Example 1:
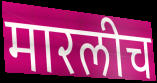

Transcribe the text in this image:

मारलीच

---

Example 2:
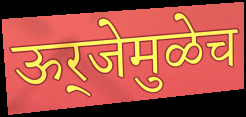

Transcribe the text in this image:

ऊर्जेमुळेच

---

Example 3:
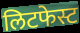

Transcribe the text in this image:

लिटफेस्ट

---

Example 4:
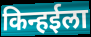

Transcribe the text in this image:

किन्हईला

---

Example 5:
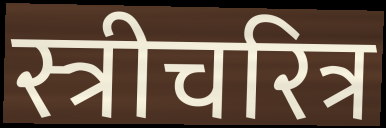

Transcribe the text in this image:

स्त्रीचरित्र